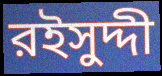
রইসুদ্দী